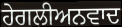
ਹੇਗਲੀਅਨਵਾਦ